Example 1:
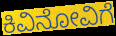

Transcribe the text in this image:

ಕಿವಿನೋವಿಗೆ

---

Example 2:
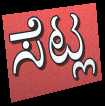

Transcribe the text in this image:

ಸೆಟ್ಲ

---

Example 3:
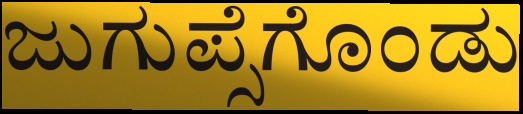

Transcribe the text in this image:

ಜುಗುಪ್ಸೆಗೊಂಡು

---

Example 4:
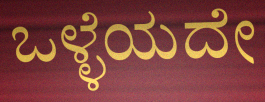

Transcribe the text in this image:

ಒಳ್ಳೆಯದೇ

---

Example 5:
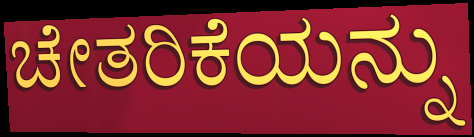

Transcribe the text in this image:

ಚೇತರಿಕೆಯನ್ನು